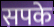
सपके